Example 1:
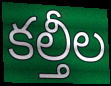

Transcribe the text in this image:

కల్తీల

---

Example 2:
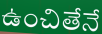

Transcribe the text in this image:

ఉంచితేనే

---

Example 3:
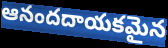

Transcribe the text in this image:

ఆనందదాయకమైన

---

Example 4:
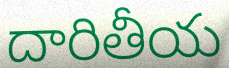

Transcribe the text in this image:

దారితీయ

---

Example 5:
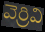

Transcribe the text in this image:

వెర్రివి